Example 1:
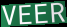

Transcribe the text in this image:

VEER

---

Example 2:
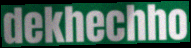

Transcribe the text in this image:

dekhechho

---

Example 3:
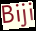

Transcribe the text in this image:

Biji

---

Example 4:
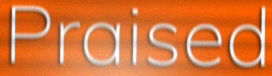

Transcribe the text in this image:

Praised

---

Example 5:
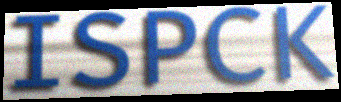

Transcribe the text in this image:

ISPCK